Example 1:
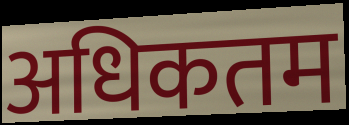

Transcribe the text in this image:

अधिकतम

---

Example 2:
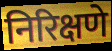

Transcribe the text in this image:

निरिक्षणे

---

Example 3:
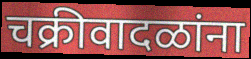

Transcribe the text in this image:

चक्रीवादळांना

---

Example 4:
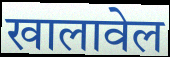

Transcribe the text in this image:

खालावेल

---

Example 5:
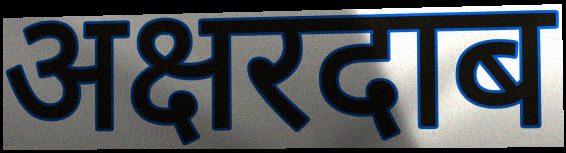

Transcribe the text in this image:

अक्षरदाब